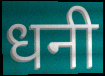
धनी